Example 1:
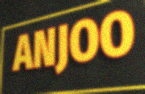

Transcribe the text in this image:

ANJOO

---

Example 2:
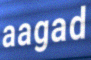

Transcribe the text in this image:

aagad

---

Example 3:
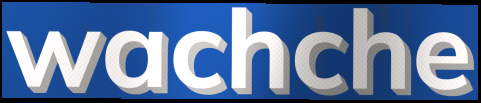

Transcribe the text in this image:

wachche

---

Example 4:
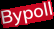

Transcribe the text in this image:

Bypoll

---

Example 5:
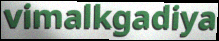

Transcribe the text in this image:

vimalkgadiya